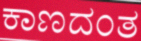
ಕಾಣದಂತ